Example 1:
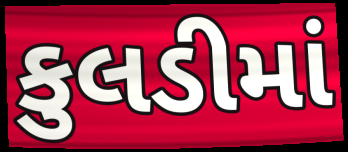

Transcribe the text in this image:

કુલડીમાં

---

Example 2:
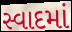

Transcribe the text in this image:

સ્વાદમાં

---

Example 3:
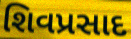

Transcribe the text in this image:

શિવપ્રસાદ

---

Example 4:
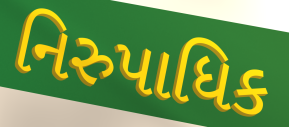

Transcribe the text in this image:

નિરુપાધિક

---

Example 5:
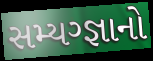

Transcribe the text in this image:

સમ્યગ્જ્ઞાનો